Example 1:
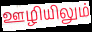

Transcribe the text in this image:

ஊழியிலும்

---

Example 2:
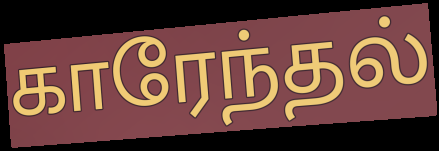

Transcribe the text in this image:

காரேந்தல்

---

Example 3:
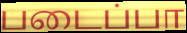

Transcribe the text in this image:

படைப்பா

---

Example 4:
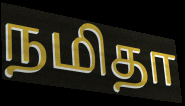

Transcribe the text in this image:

நமிதா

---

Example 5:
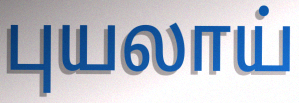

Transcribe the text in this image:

புயலாய்